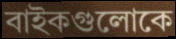
বাইকগুলোকে